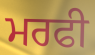
ਮਰਫੀ